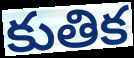
కుతిక